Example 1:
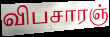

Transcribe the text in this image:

விபசாரஞ்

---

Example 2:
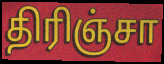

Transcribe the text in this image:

திரிஞ்சா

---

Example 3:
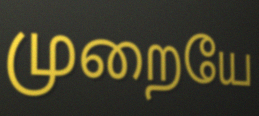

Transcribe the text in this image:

முறையே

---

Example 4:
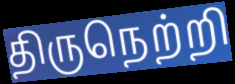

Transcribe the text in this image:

திருநெற்றி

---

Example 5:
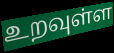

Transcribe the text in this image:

உறவுள்ள